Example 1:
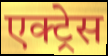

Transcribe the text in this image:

एक्ट्र्रेस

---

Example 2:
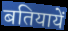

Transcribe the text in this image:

बतियायें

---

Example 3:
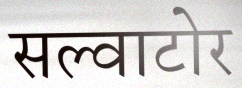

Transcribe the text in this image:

सल्वाटोर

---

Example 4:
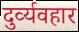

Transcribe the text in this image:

दुर्व्‍यवहार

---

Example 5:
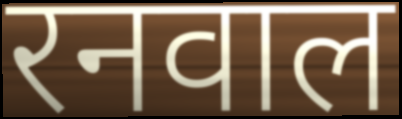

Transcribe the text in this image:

रनवाल